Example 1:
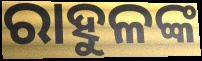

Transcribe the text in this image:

ରାହୁଳଙ୍କ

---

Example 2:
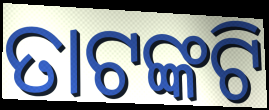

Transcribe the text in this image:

ତାଟଙ୍କଟି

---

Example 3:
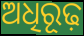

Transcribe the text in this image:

ଅଧିରୂଢ଼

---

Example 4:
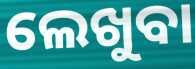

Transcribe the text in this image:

ଲେଖୁବା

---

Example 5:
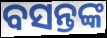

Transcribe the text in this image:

ବସନ୍ତଙ୍କ